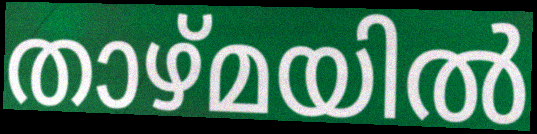
താഴ്മയിൽ